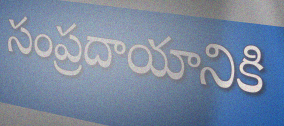
సంప్రదాయానికి